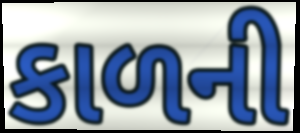
કાળની